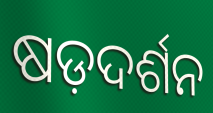
ଷଡ଼ଦର୍ଶନ